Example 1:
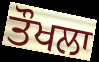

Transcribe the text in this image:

ਤੌਖਲਾ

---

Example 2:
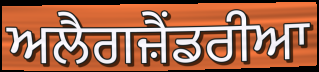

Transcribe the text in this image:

ਅਲੈਗਜ਼ੈਂਡਰੀਆ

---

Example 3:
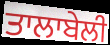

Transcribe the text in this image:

ਤਾਲਾਬੇਲੀ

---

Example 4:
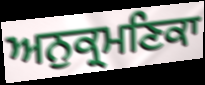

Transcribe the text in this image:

ਅਨੁਕ੍ਰਮਣਿਕਾ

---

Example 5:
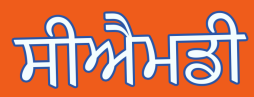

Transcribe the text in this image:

ਸੀਐਮਡੀ